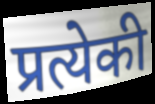
प्रत्येकी